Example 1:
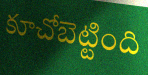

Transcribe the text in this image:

కూచోబెట్టింది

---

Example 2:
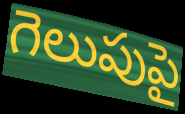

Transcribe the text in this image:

గెలుపుపై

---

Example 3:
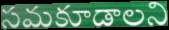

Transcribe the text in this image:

సమకూడాలని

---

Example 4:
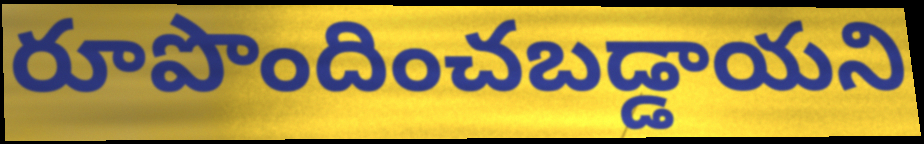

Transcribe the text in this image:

రూపొందించబడ్డాయని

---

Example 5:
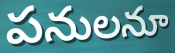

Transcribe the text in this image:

పనులనూ